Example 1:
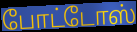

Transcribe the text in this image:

போட்டோஸ்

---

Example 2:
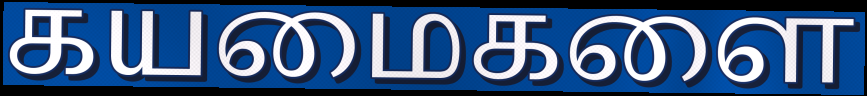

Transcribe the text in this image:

கயமைகளை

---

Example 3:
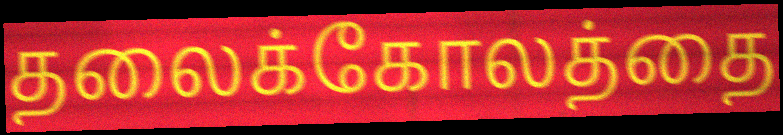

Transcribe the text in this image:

தலைக்கோலத்தை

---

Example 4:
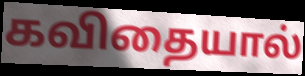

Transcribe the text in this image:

கவிதையால்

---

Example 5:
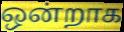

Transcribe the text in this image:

ஒன்றாக